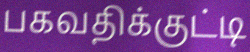
பகவதிக்குட்டி